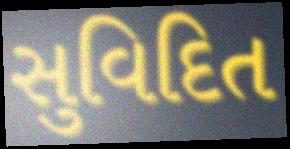
સુવિદિત